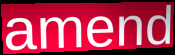
amend